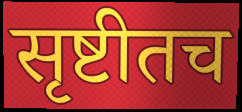
सृष्टीतच